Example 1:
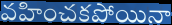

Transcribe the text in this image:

వహించకపోయినా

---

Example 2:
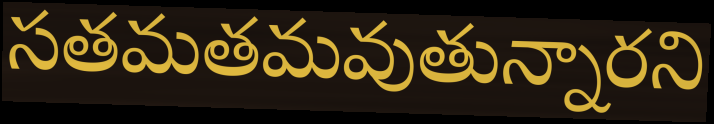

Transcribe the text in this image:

సతమతమవుతున్నారని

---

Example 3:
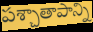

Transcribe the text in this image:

పశ్చాతాపాన్ని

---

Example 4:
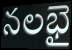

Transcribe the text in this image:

నలభై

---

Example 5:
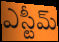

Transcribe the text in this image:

ఎస్టీమ్